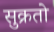
सुक्रतो